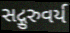
સદ્ગુરુવર્ય